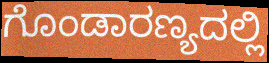
ಗೊಂಡಾರಣ್ಯದಲ್ಲಿ